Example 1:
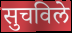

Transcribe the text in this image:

सुचविले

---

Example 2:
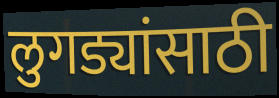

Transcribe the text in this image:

लुगड्यांसाठी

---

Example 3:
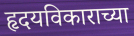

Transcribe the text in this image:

हृदयविकाराच्या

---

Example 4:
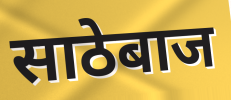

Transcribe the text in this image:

साठेबाज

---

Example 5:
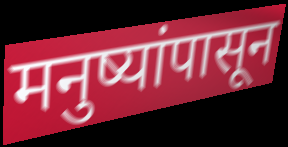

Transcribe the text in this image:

मनुष्यांपासून